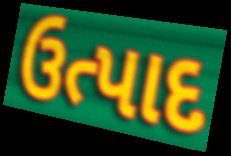
ઉત્પાદ